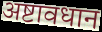
अष्टावधान